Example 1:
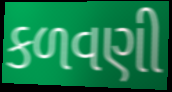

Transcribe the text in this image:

કળવણી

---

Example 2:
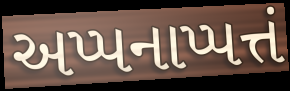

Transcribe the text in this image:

અપ્પનાપ્પત્તં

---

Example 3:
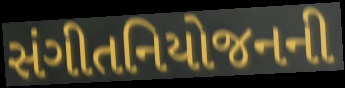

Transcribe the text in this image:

સંગીતનિયોજનની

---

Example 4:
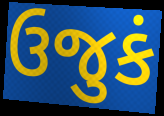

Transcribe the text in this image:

ઉજુકં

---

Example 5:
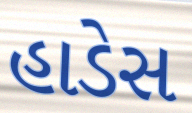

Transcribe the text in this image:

હાડેસ